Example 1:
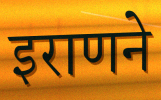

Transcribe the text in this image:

इराणने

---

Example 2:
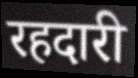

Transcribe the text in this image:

रहदारी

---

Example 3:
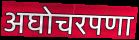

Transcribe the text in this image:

अघोचरपणा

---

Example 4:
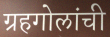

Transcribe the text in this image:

ग्रहगोलांची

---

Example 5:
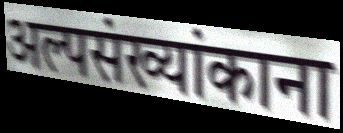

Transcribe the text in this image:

अल्पसंख्यांकाना